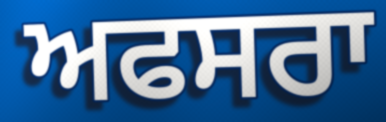
ਅਫਸਰਾ